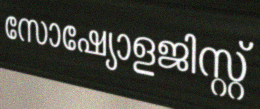
സോഷ്യോളജിസ്റ്റ്